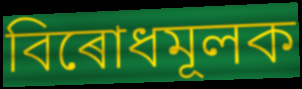
বিৰোধমূলক